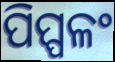
ପିପ୍ପଳଂ